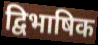
द्विभाषिक